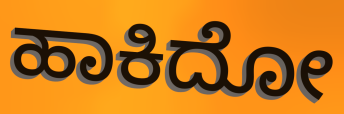
ಹಾಕಿದೋ